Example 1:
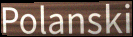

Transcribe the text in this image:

Polanski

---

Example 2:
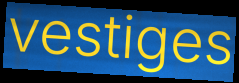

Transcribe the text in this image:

vestiges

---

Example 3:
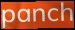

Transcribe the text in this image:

panch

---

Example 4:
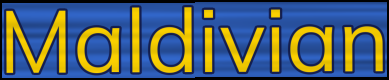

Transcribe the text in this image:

Maldivian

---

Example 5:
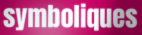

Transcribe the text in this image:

symboliques